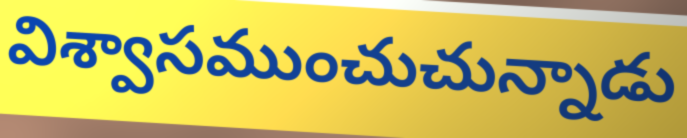
విశ్వాసముంచుచున్నాడు